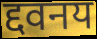
द्दवनय